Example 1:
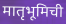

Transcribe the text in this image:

मातृभूमिची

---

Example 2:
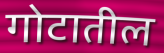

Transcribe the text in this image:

गोटातील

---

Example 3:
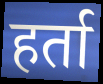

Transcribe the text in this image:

हर्ता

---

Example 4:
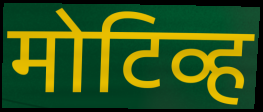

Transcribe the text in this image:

मोटिव्ह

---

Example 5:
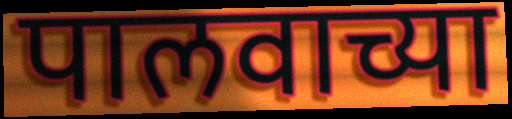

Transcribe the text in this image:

पालवाच्या